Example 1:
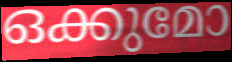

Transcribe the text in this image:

ഒക്കുമോ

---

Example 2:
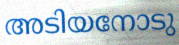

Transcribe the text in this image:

അടിയനോടു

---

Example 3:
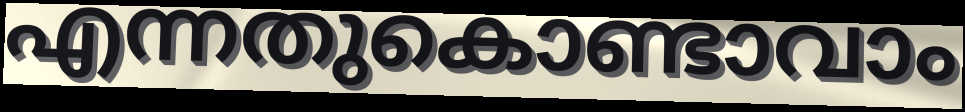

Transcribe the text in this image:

എന്നതുകൊണ്ടാവാം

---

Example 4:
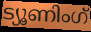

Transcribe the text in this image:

ട്യൂണിംഗ്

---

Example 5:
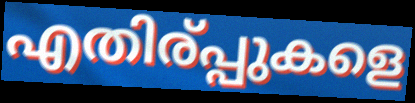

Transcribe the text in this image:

എതിര്പ്പുകളെ